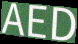
AED